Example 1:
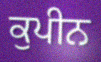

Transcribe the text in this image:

ਕੁਪੀਨ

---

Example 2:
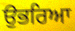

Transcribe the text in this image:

ਉਭਰਿਆ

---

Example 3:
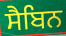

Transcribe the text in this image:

ਸੈਬਿਨ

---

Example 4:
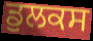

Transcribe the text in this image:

ਡੁਲਕਸ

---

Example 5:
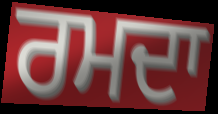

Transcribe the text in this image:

ਰਮਦਾ